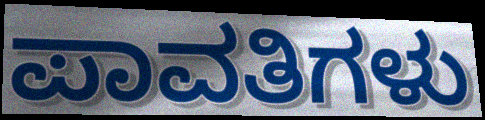
ಪಾವತಿಗಳು